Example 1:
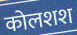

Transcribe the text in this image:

कोलशश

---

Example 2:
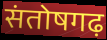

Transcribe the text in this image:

संतोषगढ़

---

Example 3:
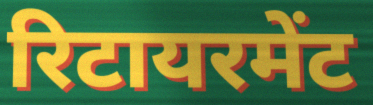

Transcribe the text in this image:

रिटायरमेंट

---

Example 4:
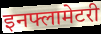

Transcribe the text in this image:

इनफ्लामेटरी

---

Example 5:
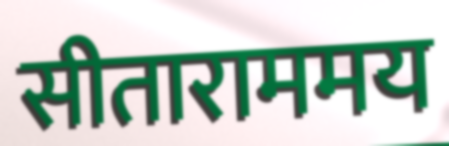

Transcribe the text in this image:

सीताराममय